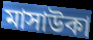
মাসাউকা